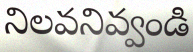
నిలవనివ్వండి